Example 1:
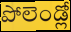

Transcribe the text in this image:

పోలెండ్లో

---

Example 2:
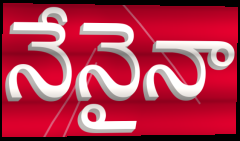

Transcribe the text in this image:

నేనైనా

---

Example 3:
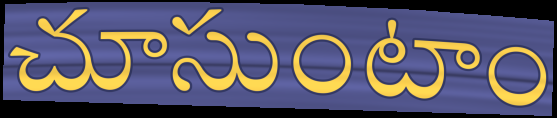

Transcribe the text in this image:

చూసుంటాం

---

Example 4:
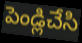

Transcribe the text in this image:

పెండ్లిచేసి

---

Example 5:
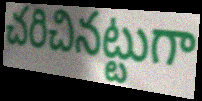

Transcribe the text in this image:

చరిచినట్టుగా